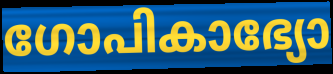
ഗോപികാഭ്യോ